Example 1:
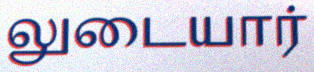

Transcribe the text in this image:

லுடையார்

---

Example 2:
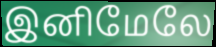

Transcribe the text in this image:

இனிமேலே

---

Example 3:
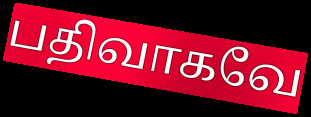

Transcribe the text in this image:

பதிவாகவே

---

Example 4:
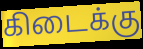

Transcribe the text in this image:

கிடைக்கு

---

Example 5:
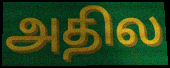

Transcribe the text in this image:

அதில